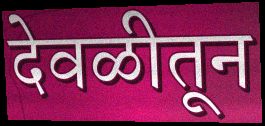
देवळीतून